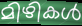
മിഴികൾ